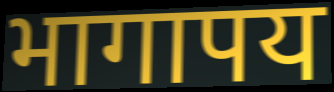
भागापय